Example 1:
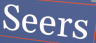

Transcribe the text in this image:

Seers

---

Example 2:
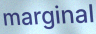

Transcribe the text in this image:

marginal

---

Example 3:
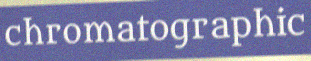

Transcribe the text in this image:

chromatographic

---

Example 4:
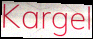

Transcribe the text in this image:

Kargel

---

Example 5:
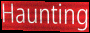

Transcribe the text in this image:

Haunting